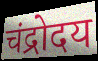
चंद्रोदय